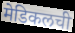
मेडिकलची